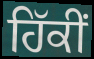
ਹਿੱਕੀਂ